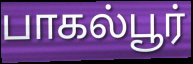
பாகல்பூர்